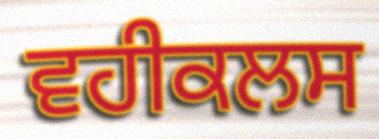
ਵਹੀਕਲਸ